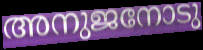
അനുജനോടു